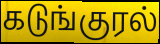
கடுங்குரல்